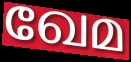
ഖേമ